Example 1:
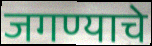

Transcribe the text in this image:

जगण्याचे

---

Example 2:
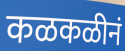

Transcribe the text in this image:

कळकळीनं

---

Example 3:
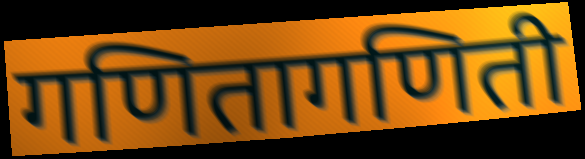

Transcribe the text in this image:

गणितागणिती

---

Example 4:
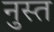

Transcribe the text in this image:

नुस्त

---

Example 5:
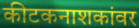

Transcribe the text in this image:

कीटकनाशकांवर